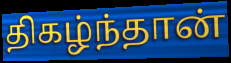
திகழ்ந்தான்